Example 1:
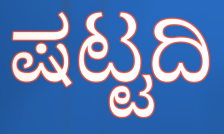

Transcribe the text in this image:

ಷಟ್ಟದಿ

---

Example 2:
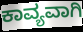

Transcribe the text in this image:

ಕಾವ್ಯವಾಗಿ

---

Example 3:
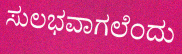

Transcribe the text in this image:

ಸುಲಭವಾಗಲೆಂದು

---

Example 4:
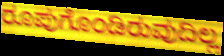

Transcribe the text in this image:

ರೂಪುಗೊಂಡಿರುವುದಿಲ್ಲ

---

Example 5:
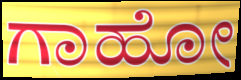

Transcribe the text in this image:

ಗಾಹೋ